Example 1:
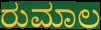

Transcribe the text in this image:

ರುಮಾಲ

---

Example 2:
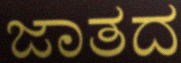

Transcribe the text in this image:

ಜಾತದ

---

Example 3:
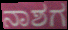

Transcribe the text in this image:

ನಾಶಗ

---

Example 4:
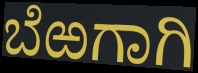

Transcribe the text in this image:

ಬೆಱಗಾಗಿ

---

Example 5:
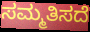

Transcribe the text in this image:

ಸಮ್ಮತಿಸದೆ